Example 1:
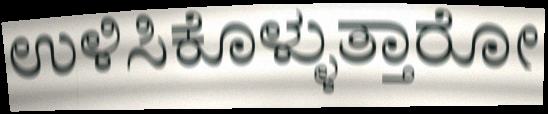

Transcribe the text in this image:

ಉಳಿಸಿಕೊಳ್ಳುತ್ತಾರೋ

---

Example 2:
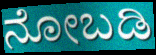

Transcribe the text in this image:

ನೋಬಡಿ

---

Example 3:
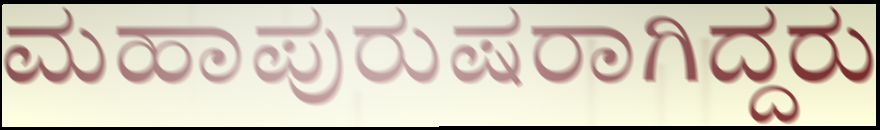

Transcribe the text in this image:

ಮಹಾಪುರುಷರಾಗಿದ್ದರು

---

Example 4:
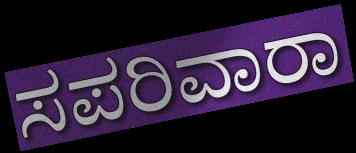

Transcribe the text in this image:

ಸಪರಿವಾರಾ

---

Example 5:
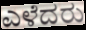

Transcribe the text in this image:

ಎಳೆದರು